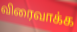
விரைவாக்க